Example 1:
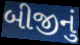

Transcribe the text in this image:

બીજીનું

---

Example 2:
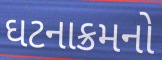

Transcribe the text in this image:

ઘટનાક્રમનો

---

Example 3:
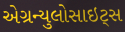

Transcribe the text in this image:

એગ્રન્યુલોસાઇટ્સ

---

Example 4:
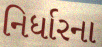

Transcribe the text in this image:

નિર્ધારના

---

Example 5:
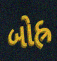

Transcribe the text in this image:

બોહ્ર